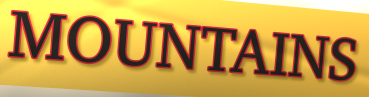
MOUNTAINS